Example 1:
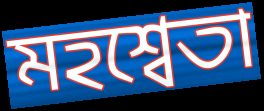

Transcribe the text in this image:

মহশ্বেতা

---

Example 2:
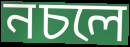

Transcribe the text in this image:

নচলে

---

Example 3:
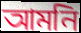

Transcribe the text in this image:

আমনি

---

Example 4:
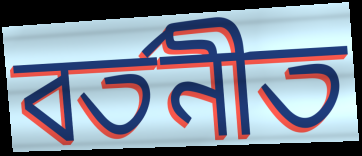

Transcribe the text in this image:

বৰ্তনীত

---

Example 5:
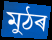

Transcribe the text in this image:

মুঠৰ